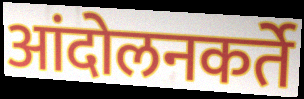
आंदोलनकर्ते